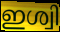
ഇശ്വി